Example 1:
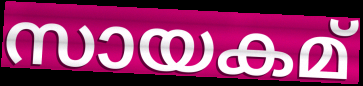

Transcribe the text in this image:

സായകമ്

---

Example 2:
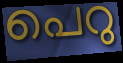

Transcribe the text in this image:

പെറു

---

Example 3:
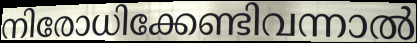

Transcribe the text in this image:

നിരോധിക്കേണ്ടിവന്നാൽ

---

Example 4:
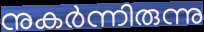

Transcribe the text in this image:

നുകർന്നിരുന്നു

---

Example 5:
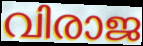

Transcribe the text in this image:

വിരാജ